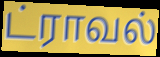
ட்ராவல்